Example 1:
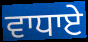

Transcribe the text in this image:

ਵਾਧਾਏ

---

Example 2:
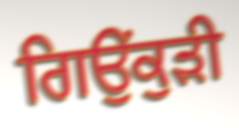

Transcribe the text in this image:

ਗਿਉਂਕੁੜੀ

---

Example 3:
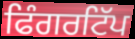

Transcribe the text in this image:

ਫਿੰਗਰਟਿੱਪ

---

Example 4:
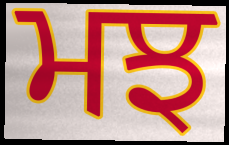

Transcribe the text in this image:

ਮਝ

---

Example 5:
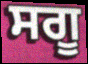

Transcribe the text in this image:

ਸਗੂ